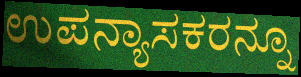
ಉಪನ್ಯಾಸಕರನ್ನೂ